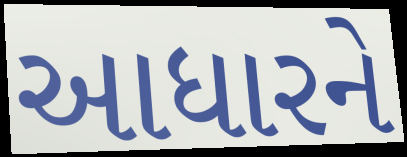
આધારને